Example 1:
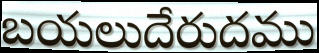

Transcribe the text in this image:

బయలుదేరుదము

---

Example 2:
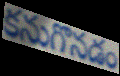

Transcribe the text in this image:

కనుగొనడం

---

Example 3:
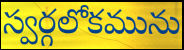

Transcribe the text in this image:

స్వర్గలోకమును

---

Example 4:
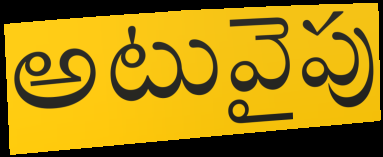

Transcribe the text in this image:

అటువైపు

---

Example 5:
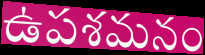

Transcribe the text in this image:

ఉపశమనం